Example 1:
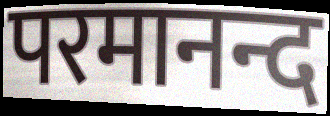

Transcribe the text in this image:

परमानन्‍द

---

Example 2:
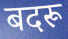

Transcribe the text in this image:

बदरू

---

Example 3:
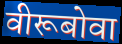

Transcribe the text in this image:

वीरूबोवा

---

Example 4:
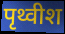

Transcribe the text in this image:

पृथ्वीश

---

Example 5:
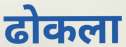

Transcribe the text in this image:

ढोकला